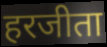
हरजीता